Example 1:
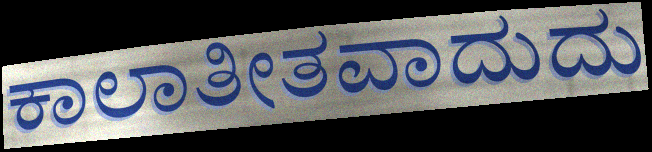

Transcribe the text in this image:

ಕಾಲಾತೀತವಾದುದು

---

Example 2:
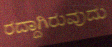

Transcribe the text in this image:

ರದ್ದಾಗಿರುವುದು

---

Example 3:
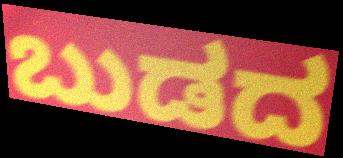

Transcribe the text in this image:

ಬುಡದ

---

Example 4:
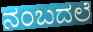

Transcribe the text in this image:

ನಂಬದಲೆ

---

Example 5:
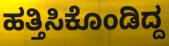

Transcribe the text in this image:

ಹತ್ತಿಸಿಕೊಂಡಿದ್ದ